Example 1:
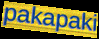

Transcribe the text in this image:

pakapaki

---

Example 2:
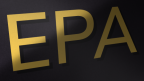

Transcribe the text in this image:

EPA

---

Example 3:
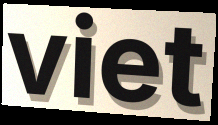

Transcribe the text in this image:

viet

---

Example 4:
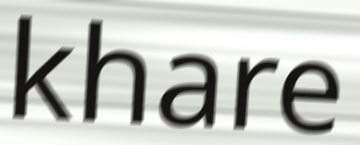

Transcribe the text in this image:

khare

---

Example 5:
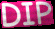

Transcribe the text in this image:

DIP